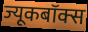
ज्यूकबॉक्स